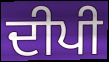
ਦੀਪੀ